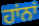
ਹਾਂਨਾਂ